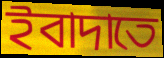
ইবাদাতে